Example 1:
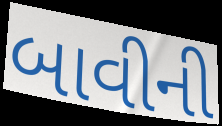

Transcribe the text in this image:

બાવીની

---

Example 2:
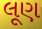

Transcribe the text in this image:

લૂણ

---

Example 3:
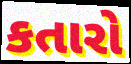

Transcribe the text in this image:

કતારો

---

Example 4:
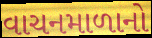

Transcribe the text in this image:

વાચનમાળાનો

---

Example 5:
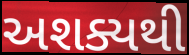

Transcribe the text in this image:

અશક્યથી